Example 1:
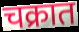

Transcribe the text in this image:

चक्रात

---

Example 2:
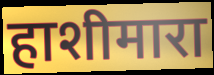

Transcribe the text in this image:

हाशीमारा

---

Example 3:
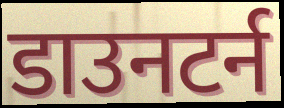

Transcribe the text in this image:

डाउनटर्न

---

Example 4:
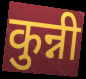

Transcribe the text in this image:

कुन्नी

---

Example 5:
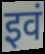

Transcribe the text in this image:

इवं